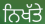
ਨਿਖੱਤੇ